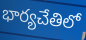
భార్యచేతిలో